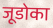
जूडोका